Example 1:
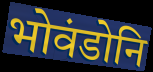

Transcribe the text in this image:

भोवंडोनि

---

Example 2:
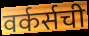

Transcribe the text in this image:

वर्कर्सची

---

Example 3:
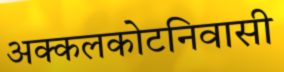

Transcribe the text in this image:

अक्कलकोटनिवासी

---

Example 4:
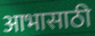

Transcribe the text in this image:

आभासाठी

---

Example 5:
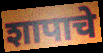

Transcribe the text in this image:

शापाचे